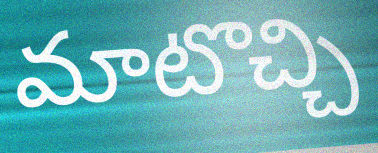
మాటొచ్చి